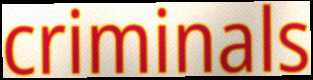
criminals